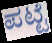
ಪಟ್ಟೆ